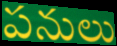
పనులు